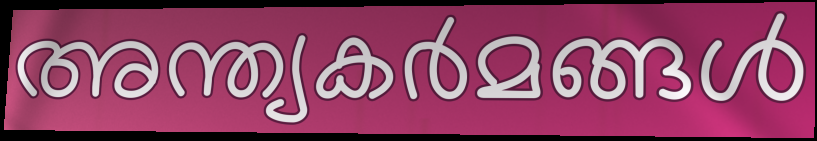
അന്ത്യകർമങ്ങൾ